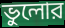
ভুলোর